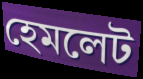
হেমলেট